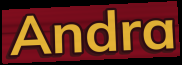
Andra